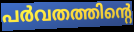
പർവതത്തിന്റെ